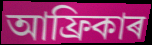
আফ্ৰিকাৰ